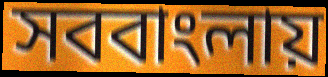
সববাংলায়